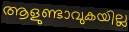
ആളുണ്ടാവുകയില്ല